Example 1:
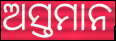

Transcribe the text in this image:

ଅସ୍ତମାନ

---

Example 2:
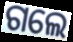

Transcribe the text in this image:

ଗଲେ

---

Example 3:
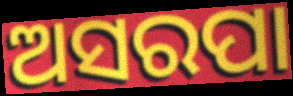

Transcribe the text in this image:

ଅସରପା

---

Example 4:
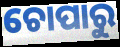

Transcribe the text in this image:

ଚୋପାରୁ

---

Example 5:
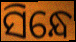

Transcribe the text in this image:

ସିନ୍ଧେ